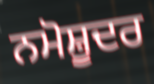
ਨਮੋਸ਼ੂਦਰ